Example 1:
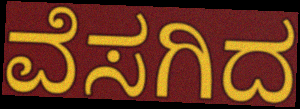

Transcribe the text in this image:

ವೆಸಗಿದ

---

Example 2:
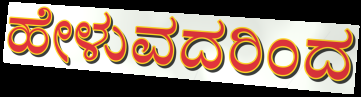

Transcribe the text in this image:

ಹೇಳುವದರಿಂದ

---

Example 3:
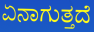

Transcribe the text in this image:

ಏನಾಗುತ್ತದೆ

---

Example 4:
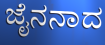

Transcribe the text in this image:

ಜೈನನಾದ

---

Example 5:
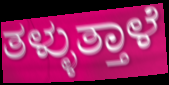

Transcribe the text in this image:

ತಳ್ಳುತ್ತಾಳೆ